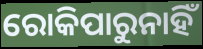
ରୋକିପାରୁନାହିଁ